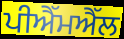
ਪੀਐੱਮਐੱਲ